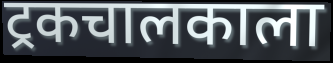
ट्रकचालकाला